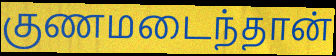
குணமடைந்தான்